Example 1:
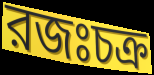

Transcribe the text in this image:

রজঃচক্র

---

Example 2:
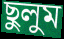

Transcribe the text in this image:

ছুলুম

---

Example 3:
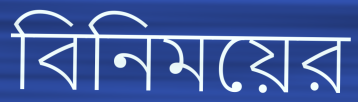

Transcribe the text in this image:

বিনিময়ের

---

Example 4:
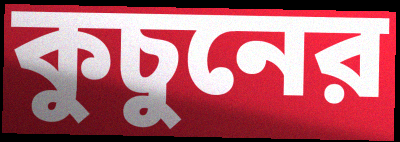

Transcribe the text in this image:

কুচুনের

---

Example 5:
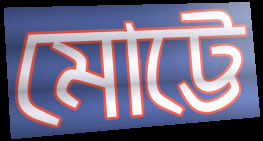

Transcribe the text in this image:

মোট্টে